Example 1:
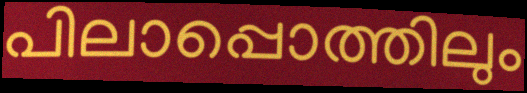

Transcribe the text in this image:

പിലാപ്പൊത്തിലും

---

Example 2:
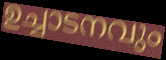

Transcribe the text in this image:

ഉച്ചാടനവും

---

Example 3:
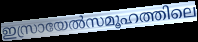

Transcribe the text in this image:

ഇസ്രായേൽസമൂഹത്തിലെ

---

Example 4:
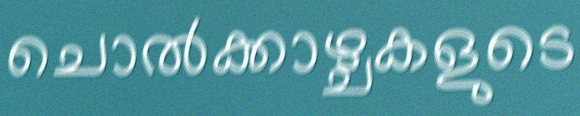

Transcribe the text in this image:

ചൊൽക്കാഴ്ചകളുടെ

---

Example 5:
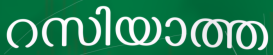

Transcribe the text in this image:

റസിയാത്ത